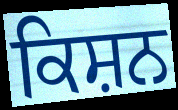
ਕਿਸ਼ਨ